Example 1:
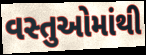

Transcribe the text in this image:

વસ્તુઓમાંથી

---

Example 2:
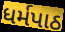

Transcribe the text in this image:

ધર્મપાઠ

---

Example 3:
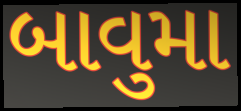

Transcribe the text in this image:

બાવુમા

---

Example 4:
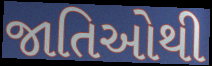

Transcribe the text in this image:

જાતિઓથી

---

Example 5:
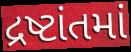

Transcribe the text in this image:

દ્રષ્ટાંતમાં